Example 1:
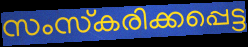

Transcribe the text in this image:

സംസ്‌കരിക്കപ്പെട്ട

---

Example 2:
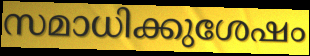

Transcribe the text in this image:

സമാധിക്കുശേഷം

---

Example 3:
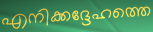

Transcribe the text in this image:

എനിക്കദ്ദേഹത്തെ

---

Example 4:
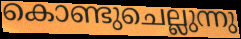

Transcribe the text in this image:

കൊണ്ടുചെല്ലുന്നു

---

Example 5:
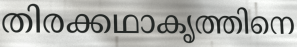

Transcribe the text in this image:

തിരക്കഥാകൃത്തിനെ